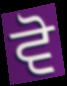
ਵੋ